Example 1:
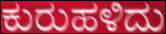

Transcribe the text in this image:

ಕುರುಹಳಿದು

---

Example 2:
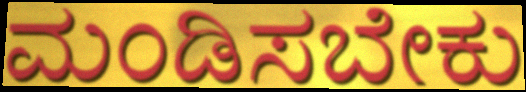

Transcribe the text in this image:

ಮಂಡಿಸಬೇಕು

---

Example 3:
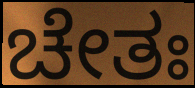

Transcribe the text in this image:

ಚೇತಃ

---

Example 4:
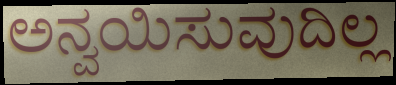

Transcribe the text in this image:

ಅನ್ವಯಿಸುವುದಿಲ್ಲ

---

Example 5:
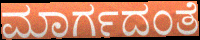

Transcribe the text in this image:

ಮಾರ್ಗದಂತೆ